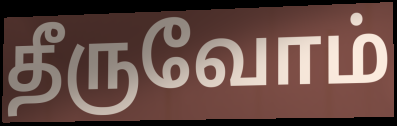
தீருவோம்